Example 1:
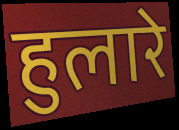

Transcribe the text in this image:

हुलारे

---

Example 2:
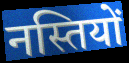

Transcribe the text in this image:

नस्तियों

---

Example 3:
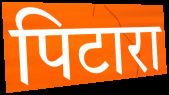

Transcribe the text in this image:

पिटारा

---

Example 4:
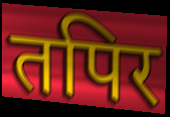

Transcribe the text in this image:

तपिर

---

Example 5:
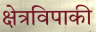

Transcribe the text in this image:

क्षेत्रविपाकी